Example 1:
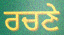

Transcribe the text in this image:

ਰਚਣੇ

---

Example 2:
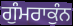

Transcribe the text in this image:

ਗੁੰਮਰਾਕੁੰਨ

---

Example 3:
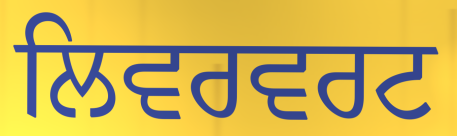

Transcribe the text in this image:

ਲਿਵਰਵਰਟ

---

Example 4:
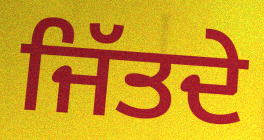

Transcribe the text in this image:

ਜਿੱਤਦੇ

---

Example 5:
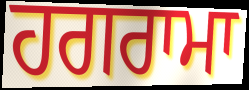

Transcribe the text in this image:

ਹਗਰਾਮਾ